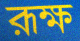
রূক্ষ